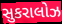
સુકરાલોઝ